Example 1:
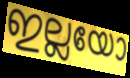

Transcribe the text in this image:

ഇല്ലയോ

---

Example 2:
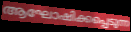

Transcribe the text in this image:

ആഘോഷിക്കപ്പെടുന്ന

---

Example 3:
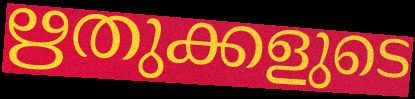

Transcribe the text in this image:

ഋതുക്കളുടെ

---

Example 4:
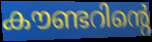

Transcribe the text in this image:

കൗണ്ടറിന്റെ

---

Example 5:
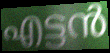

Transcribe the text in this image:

എട്ടൻ